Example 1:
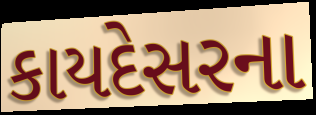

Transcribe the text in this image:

કાયદેસરના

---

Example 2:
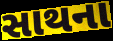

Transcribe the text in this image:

સાથના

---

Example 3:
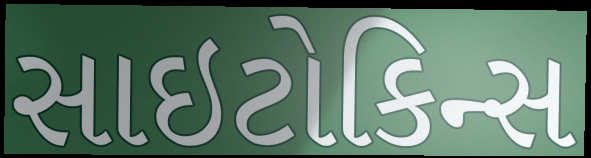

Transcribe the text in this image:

સાઇટોકિન્સ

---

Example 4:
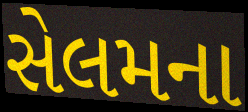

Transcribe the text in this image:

સેલમના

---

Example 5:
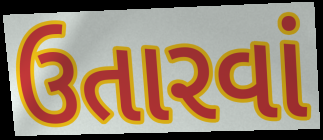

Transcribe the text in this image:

ઉતારવાં